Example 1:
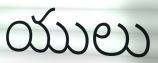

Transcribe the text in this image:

యులు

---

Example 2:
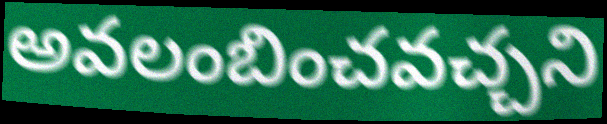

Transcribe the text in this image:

అవలంబించవచ్చని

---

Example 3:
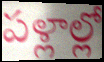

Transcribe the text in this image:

పళ్లాల్లో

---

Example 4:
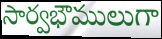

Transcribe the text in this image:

సార్వభౌములుగా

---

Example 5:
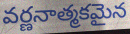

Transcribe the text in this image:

వర్ణనాత్మకమైన